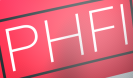
PHFI